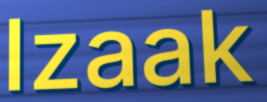
Izaak